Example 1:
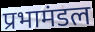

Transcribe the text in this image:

प्रभामंडल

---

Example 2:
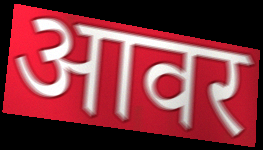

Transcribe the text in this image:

आवर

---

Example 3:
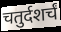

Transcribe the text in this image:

चतुर्दशर्चं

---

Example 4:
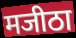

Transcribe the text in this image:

मजीठा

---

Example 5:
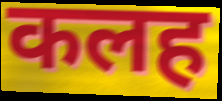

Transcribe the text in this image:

कलह